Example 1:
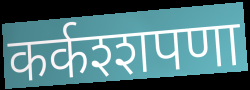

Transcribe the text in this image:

कर्कश्शपणा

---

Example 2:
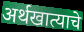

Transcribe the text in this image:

अर्थखात्याचे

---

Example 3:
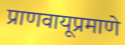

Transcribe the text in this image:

प्राणवायूप्रमाणे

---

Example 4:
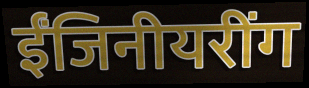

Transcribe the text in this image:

ईंजिनीयरींग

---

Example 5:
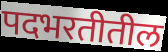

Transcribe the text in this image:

पदभरतीतील